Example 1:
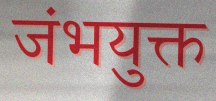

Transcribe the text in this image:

जंभयुक्त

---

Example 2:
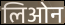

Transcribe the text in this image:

लिओन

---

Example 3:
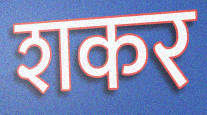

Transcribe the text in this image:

शकर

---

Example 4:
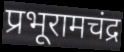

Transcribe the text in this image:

प्रभूरामचंद्र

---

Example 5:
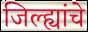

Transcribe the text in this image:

जिल्ह्यांचे